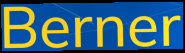
Berner